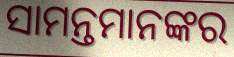
ସାମନ୍ତମାନଙ୍କର